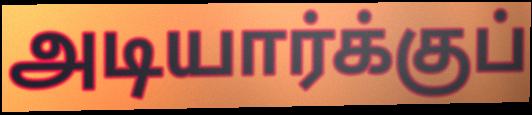
அடியார்க்குப்